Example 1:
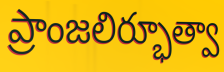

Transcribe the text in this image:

ప్రాంజలిర్భూత్వా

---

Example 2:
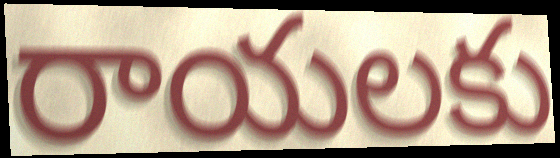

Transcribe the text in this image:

రాయలకు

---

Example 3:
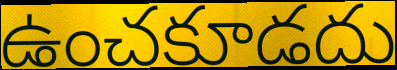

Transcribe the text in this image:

ఉంచకూడదు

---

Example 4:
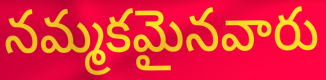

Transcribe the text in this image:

నమ్మకమైనవారు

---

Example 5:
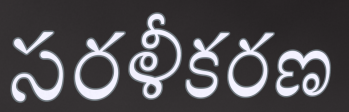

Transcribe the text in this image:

సరళీకరణ